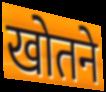
खोतने